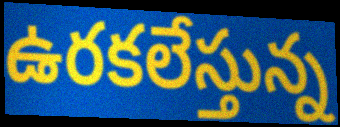
ఉరకలేస్తున్న